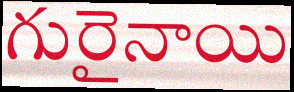
గురైనాయి